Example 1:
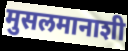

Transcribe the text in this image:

मुसलमानाशी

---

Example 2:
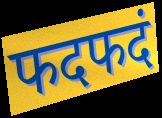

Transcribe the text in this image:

फदफदं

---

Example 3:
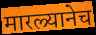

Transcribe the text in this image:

मारल्यानेच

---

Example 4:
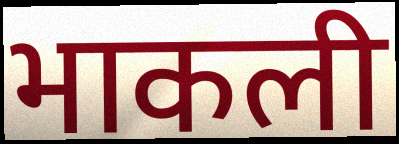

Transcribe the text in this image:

भाकली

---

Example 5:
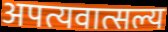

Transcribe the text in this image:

अपत्यवात्सल्य